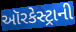
ઑરકેસ્ટ્રાની